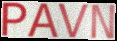
PAVN